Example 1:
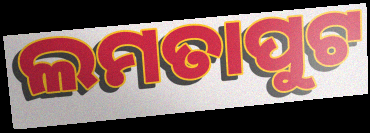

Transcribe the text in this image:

ଲମତାପୁଟ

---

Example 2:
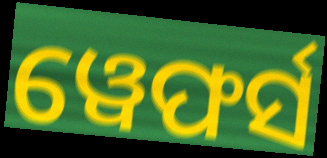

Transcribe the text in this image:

ୱେଫର୍ସ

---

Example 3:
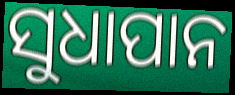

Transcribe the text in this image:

ସୁଧାପାନ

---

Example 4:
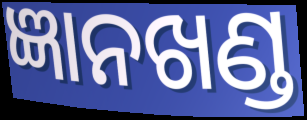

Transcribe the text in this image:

ଜ୍ଞାନଖଣ୍ଡ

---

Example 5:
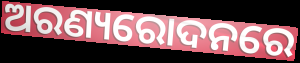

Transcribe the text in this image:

ଅରଣ୍ୟରୋଦନରେ